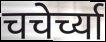
चचेर्च्या